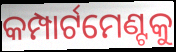
କମ୍ପାର୍ଟମେଣ୍ଟକୁ